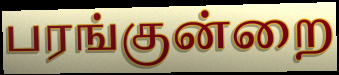
பரங்குன்றை